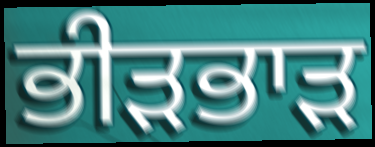
ਭੀੜਭਾੜ